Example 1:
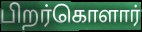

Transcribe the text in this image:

பிறர்கொளார்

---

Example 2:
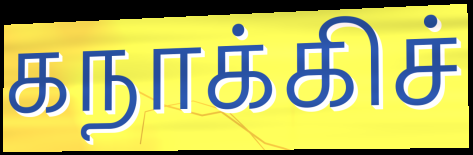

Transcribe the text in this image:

கநாக்கிச்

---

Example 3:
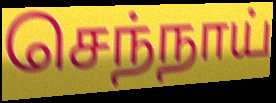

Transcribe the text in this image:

செந்நாய்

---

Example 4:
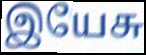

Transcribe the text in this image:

இயேசு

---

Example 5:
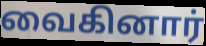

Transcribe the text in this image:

வைகினார்